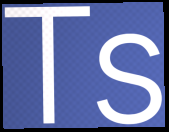
Ts